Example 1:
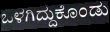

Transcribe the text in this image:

ಒಳಗಿದ್ದುಕೊಂಡು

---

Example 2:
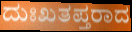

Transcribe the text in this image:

ದುಃಖತಪ್ತರಾದ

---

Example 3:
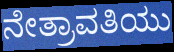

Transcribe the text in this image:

ನೇತ್ರಾವತಿಯು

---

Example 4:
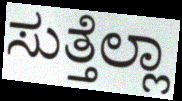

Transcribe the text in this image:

ಸುತ್ತೆಲ್ಲಾ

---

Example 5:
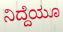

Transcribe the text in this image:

ನಿದ್ದೆಯೂ